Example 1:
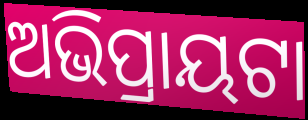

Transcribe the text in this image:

ଅଭିପ୍ରାୟଟା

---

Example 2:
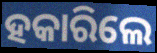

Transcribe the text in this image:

ହକାରିଲେ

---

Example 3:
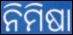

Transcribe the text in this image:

ନିମିଷା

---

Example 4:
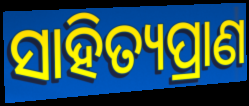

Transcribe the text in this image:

ସାହିତ୍ୟପ୍ରାଣ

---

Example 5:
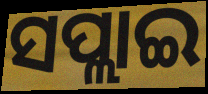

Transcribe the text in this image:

ସପ୍ଲାଇ